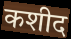
कशीद